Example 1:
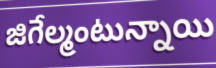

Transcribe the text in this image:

జిగేల్మంటున్నాయి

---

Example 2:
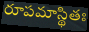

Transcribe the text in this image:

రూపమాస్థితః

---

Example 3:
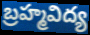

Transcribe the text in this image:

బ్రహ్మవిద్య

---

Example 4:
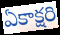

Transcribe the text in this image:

ఏకాక్షరి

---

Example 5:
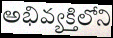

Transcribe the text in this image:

అభివ్యక్తిలోని